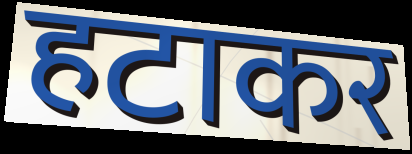
हटाकर